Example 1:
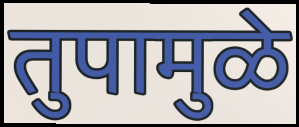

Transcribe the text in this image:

तुपामुळे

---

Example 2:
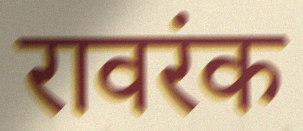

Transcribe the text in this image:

रावरंक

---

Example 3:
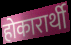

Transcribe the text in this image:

होकारार्थी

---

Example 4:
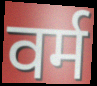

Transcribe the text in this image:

वर्म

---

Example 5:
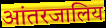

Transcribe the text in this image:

आंतरजालिय